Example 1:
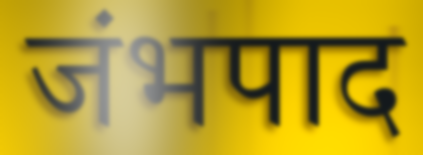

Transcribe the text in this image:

जंभपाद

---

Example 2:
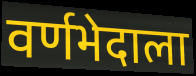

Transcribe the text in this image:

वर्णभेदाला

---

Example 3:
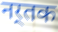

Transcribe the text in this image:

नर्तक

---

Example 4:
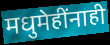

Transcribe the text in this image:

मधुमेहींनाही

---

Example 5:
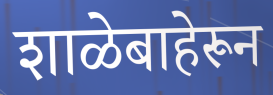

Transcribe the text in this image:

शाळेबाहेरून